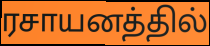
ரசாயனத்தில்